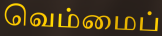
வெம்மைப்